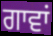
ਗਾਵਾਂ